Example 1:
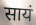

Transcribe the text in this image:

सायं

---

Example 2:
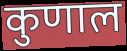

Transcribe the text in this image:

कुणाल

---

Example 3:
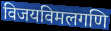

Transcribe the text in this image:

विजयविमलगणि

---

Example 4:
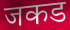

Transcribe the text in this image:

जकड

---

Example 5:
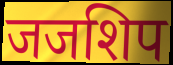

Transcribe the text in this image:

जजशिप